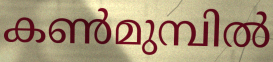
കൺമുമ്പിൽ